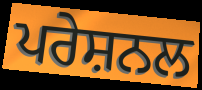
ਪਰੇਸ਼ਨਲ